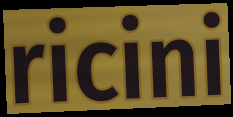
ricini